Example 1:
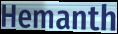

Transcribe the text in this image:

Hemanth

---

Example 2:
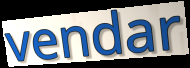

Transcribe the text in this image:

vendar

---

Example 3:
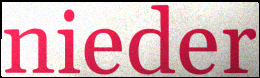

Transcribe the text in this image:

nieder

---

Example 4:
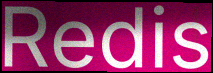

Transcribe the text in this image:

Redis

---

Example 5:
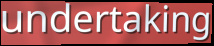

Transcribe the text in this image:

undertaking